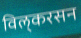
विल्करसन